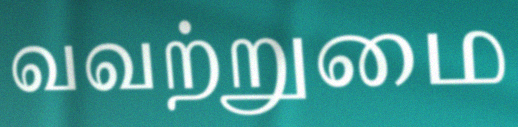
வவற்றுமை